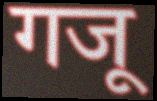
गजू